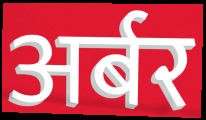
अर्बर